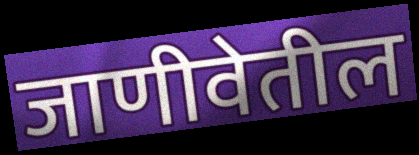
जाणीवेतील